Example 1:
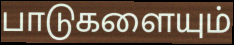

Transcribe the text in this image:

பாடுகளையும்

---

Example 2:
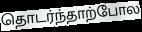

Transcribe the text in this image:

தொடர்ந்தாற்போல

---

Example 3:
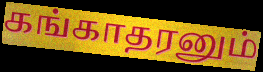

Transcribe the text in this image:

கங்காதரனும்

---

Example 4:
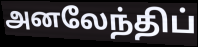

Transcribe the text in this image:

அனலேந்திப்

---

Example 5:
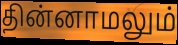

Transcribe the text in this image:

தின்னாமலும்